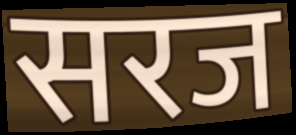
सरज